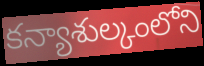
కన్యాశుల్కంలోని